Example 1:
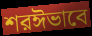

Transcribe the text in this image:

শরঈভাবে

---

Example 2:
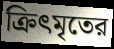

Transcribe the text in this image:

ক্রিৎমৃতের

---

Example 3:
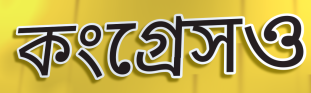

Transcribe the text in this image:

কংগ্রেসও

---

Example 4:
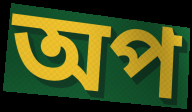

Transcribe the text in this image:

অপ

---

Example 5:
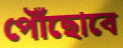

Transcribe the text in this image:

পৌঁছোবে